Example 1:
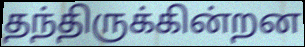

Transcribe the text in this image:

தந்திருக்கின்றன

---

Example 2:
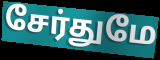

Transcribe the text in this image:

சேர்துமே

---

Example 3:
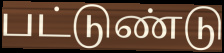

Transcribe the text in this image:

பட்டுண்டு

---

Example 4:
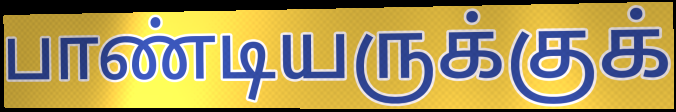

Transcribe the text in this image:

பாண்டியருக்குக்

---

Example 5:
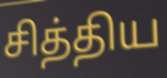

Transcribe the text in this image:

சித்திய